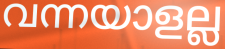
വന്നയാളല്ല